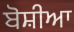
ਬੋਸ਼ੀਆ